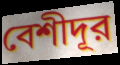
বেশীদূর